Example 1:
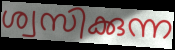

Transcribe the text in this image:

ശ്വസിക്കുന്ന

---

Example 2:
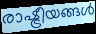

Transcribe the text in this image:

രാഷ്ട്രീയങ്ങൾ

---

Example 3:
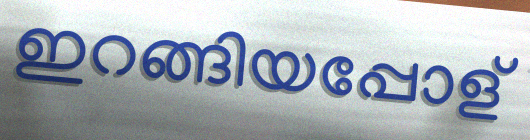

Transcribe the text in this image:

ഇറങ്ങിയപ്പോള്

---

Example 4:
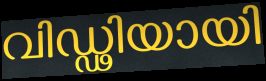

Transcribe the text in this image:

വിഡ്ഢിയായി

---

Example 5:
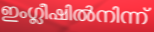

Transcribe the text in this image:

ഇംഗ്ലീഷിൽനിന്ന്